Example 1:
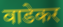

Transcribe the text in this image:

वाडेकर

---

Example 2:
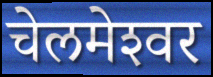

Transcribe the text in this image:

चेलमेश्‍वर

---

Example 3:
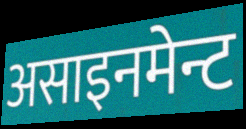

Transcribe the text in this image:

असाइनमेन्ट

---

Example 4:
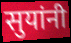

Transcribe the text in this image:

सुयांनी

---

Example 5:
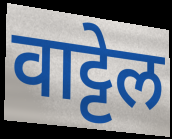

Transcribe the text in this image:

वाट्टेल